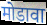
मोडावा